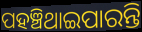
ପହଞ୍ଚିଥାଇପାରନ୍ତି